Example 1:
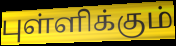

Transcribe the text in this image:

புள்ளிக்கும்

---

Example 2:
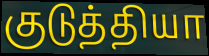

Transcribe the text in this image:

குடுத்தியா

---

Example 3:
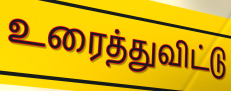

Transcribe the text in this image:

உரைத்துவிட்டு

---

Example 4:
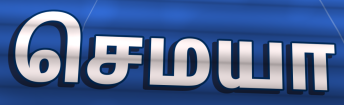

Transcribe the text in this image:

செமயா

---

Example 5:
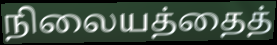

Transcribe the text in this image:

நிலையத்தைத்